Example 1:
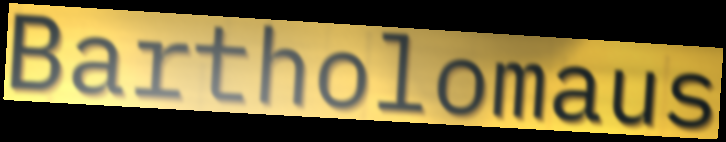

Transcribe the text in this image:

Bartholomaus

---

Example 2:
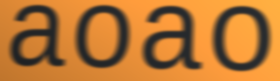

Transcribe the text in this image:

aoao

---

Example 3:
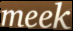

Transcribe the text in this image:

meek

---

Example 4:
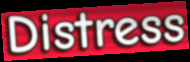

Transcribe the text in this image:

Distress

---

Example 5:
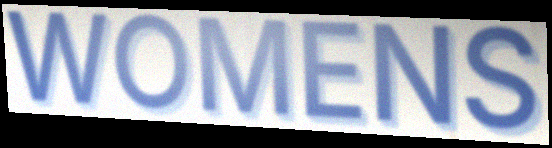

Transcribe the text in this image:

WOMENS